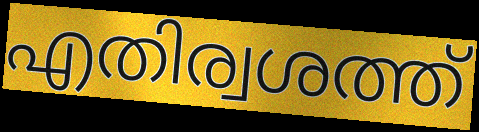
എതിര്വശത്ത്